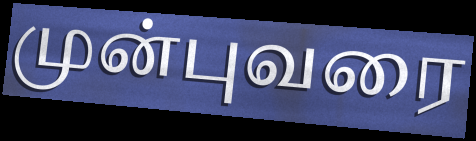
முன்புவரை